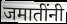
जमातींनी